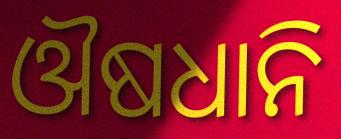
ଔଷଧାନି